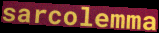
sarcolemma